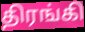
திரங்கி